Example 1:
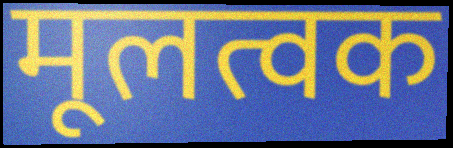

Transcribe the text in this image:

मूलत्वक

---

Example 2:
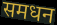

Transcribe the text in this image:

समधन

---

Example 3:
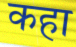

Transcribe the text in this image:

कहा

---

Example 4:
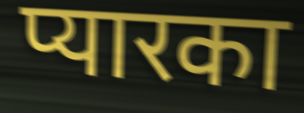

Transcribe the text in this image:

प्यारका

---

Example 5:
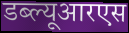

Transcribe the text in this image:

डब्ल्यूआरएस